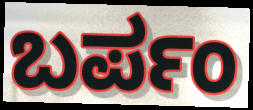
ಬರ್ಪಂ